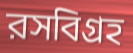
রসবিগ্রহ